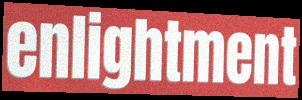
enlightment